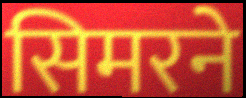
सिमरने